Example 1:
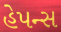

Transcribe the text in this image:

હેપન્સ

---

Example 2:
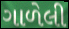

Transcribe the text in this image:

ગાળેલી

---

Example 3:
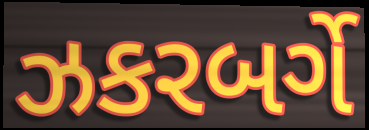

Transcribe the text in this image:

ઝકરબર્ગે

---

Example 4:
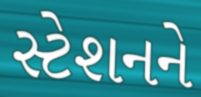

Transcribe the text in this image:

સ્ટેશનને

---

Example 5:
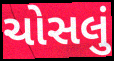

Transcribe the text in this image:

ચોસલું